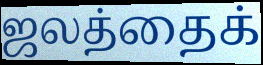
ஜலத்தைக்